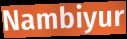
Nambiyur